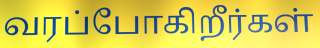
வரப்போகிறீர்கள்